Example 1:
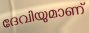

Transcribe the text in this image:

ദേവിയുമാണ്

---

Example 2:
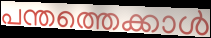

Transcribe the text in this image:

പന്തത്തെക്കാൾ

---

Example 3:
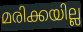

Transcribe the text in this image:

മരിക്കയില്ല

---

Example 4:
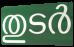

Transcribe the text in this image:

തുടർ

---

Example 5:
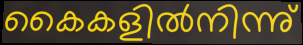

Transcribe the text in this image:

കൈകളിൽനിന്നു്